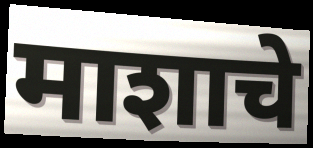
माशाचे